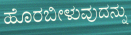
ಹೊರಬೀಳುವುದನ್ನು